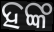
ହଙ୍କ